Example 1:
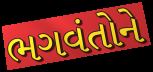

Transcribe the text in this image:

ભગવંતોને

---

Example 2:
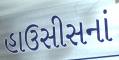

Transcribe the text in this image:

હાઉસીસનાં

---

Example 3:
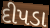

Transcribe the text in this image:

દીપડા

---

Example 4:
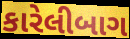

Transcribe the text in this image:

કારેલીબાગ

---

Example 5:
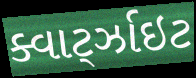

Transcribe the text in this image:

ક્વાર્ટ્ઝાઇટ